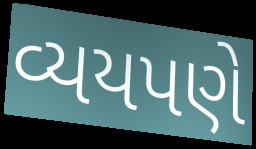
વ્યયપણે